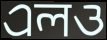
এলও